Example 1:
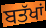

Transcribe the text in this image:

ਬਤੱਖਾਂ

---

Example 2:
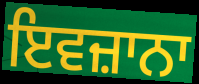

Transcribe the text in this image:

ਇਵਜ਼ਾਨਾ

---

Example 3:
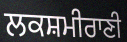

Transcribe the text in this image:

ਲਕਸ਼ਮੀਰਾਣੀ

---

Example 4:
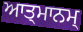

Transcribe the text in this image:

ਆਤ੍ਮਾਨਮ੍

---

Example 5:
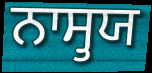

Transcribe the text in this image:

ਨਾਸ੍ਤਯ